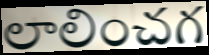
లాలించగ